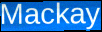
Mackay